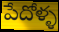
పేదోళ్ళ